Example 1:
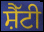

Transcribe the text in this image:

ਸ਼ੈੱਟੀ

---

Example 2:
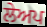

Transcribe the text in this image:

ਲੇਅਪ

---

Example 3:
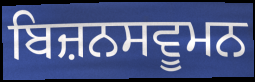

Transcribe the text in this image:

ਬਿਜ਼ਨਸਵੂਮਨ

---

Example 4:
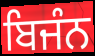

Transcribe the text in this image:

ਬਿਜੰਨ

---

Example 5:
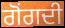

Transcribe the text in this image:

ਗੋਂਗਦੀ